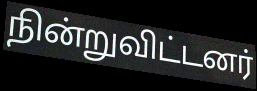
நின்றுவிட்டனர்